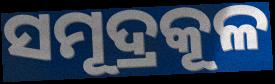
ସମୂଦ୍ରକୂଳ